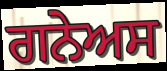
ਗਨੇਅਸ